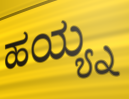
ಹಯ್ಯ್ನ